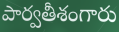
పార్వతీశంగారు